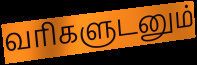
வரிகளுடனும்